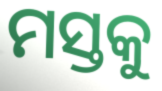
ମସ୍ତକୁ